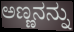
ಅಣ್ಣನನ್ನು